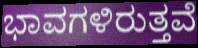
ಭಾವಗಳಿರುತ್ತವೆ